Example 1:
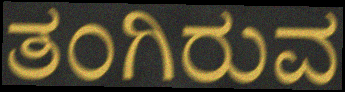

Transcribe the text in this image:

ತಂಗಿರುವ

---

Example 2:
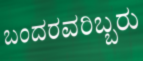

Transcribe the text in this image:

ಬಂದರವರಿಬ್ಬರು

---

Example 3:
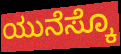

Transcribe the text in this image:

ಯುನೆಸ್ಕೊ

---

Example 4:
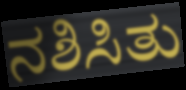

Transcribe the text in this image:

ನಶಿಸಿತು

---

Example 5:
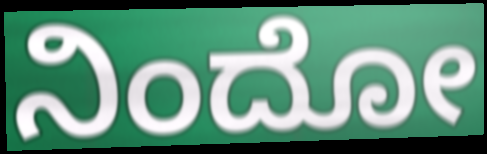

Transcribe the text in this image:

ನಿಂದೋ